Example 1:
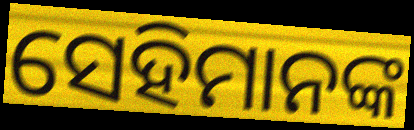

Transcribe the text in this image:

ସେହିମାନଙ୍କ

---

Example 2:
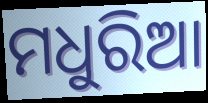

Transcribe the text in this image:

ମଧୁରିଆ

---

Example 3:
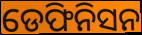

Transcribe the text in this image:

ଡେଫିନିସନ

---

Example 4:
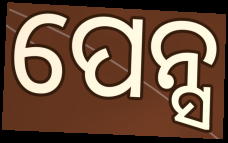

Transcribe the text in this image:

ପେନ୍ସ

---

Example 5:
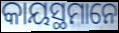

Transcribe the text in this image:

କାୟସ୍ଥମାନେ